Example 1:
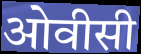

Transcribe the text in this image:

ओवीसी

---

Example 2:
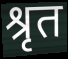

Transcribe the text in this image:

श्रृत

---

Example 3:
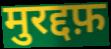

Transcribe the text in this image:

मुरद्दफ़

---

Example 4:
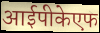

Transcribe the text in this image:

आईपीकेएफ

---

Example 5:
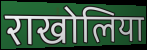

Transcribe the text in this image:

राखोलिया